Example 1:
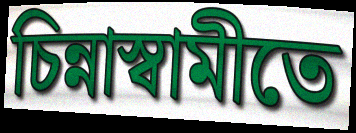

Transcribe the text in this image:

চিন্নাস্বামীতে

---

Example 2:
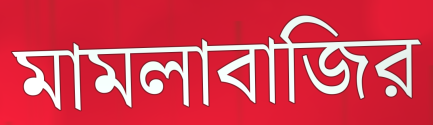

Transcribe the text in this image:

মামলাবাজির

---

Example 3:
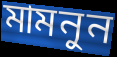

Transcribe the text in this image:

মামনুন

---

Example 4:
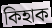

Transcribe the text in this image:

কিহাক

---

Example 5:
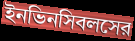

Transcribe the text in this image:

ইনভিনসিবলসের